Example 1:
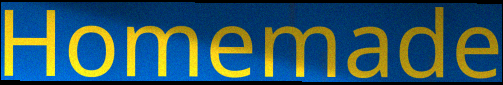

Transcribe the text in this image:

Homemade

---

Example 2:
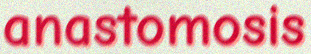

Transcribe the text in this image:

anastomosis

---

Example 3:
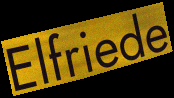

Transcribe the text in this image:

Elfriede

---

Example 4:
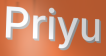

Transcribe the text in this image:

Priyu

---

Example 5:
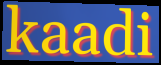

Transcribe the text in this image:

kaadi